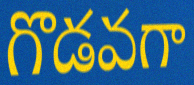
గొడవగా